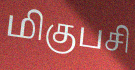
மிகுபசி